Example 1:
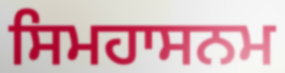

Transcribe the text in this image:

ਸਿਮਹਾਸਨਮ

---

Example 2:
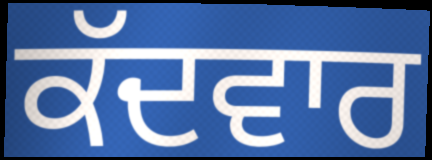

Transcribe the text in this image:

ਕੱਦਵਾਰ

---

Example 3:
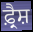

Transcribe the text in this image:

ਫ਼੍ਰੈਸ਼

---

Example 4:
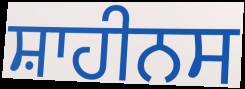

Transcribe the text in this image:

ਸ਼ਾਹੀਨਸ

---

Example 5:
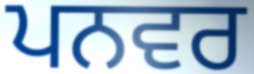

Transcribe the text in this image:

ਪਨਵਰ